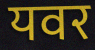
यवर